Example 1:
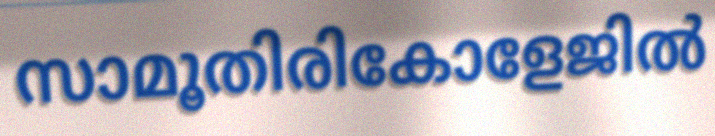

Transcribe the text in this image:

സാമൂതിരികോളേജിൽ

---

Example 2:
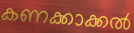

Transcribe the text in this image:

കണക്കാക്കൽ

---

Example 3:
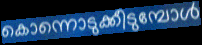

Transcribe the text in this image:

കൊന്നൊടുക്കീടുമ്പോൾ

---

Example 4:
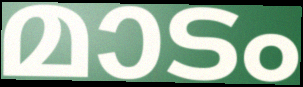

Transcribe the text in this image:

മാടം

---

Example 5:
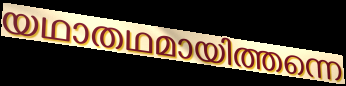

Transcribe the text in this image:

യഥാതഥമായിത്തന്നെ